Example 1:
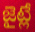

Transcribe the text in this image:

జైట్లే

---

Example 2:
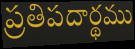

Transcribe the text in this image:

ప్రతిపదార్థము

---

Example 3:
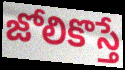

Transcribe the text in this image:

జోలికొస్తే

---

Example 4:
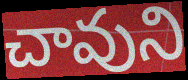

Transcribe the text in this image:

చావుని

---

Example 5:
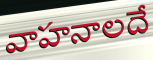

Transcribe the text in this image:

వాహనాలదే